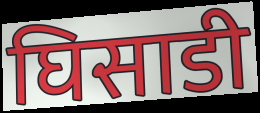
घिसाडी